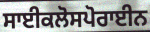
ਸਾਈਕਲੋਸਪੋਰਾਈਨ